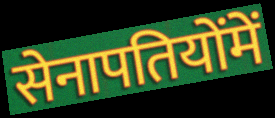
सेनापतियोंमें